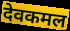
देवकमल